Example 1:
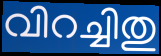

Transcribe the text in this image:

വിറച്ചിതു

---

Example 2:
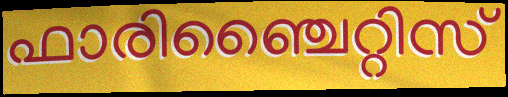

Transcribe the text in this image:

ഫാരിഞ്ചൈറ്റിസ്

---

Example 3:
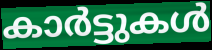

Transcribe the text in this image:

കാർട്ടുകൾ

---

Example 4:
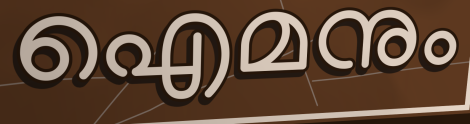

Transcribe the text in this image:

ഐമനും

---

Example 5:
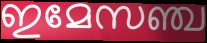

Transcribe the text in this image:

ഇമേസഞ്ച